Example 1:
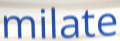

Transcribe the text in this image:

milate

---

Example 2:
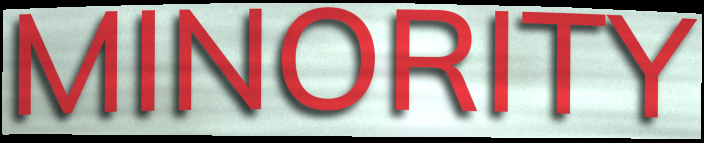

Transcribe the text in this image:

MINORITY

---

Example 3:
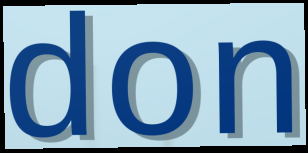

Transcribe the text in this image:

don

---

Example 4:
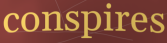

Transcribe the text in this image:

conspires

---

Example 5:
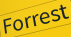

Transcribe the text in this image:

Forrest